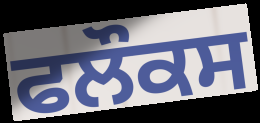
ਫਲੌਕਸ